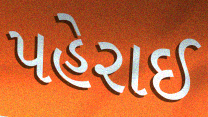
પહેરાઈ